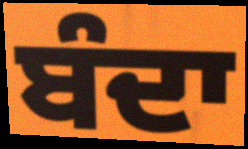
ਬੰਦਾ